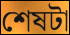
শেষটা